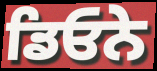
ਡਿਓਨੇ